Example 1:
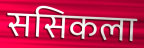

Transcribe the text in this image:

ससिकला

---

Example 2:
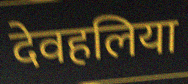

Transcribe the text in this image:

देवहलिया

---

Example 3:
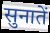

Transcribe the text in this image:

सुनातें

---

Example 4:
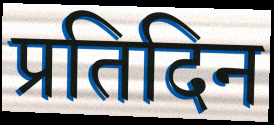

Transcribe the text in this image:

प्रतिदिन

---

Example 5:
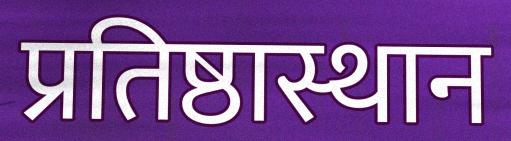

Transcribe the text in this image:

प्रतिष्ठास्थान